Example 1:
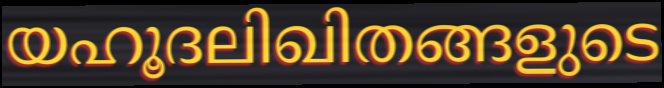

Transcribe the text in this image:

യഹൂദലിഖിതങ്ങളുടെ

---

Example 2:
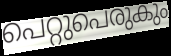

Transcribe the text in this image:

പെറ്റുപെരുകും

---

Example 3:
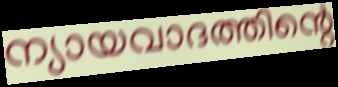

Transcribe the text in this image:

ന്യായവാദത്തിന്റെ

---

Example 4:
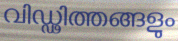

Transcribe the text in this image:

വിഡ്ഢിത്തങ്ങളും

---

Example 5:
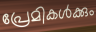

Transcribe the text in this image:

പ്രേമികൾക്കും